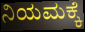
ನಿಯಮಕ್ಕೆ